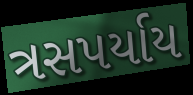
ત્રસપર્યાય